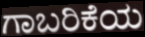
ಗಾಬರಿಕೆಯ